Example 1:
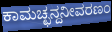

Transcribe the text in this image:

ಕಾಮಚ್ಛನ್ದನೀವರಣಂ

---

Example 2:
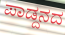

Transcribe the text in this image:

ಪಾಡ್ದನದ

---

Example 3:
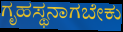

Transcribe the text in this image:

ಗೃಹಸ್ಥನಾಗಬೇಕು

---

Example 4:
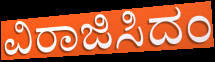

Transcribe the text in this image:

ವಿರಾಜಿಸಿದಂ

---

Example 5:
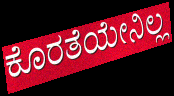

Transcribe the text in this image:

ಕೊರತೆಯೇನಿಲ್ಲ